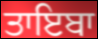
ਤਾਇਬਾ